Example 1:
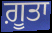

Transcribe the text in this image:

ਗ਼ੂਤਾ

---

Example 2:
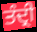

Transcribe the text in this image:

ਤੰਦ੍ਰੀ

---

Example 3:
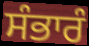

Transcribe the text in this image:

ਸੰਭਾਰੰ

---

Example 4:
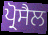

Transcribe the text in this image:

ਪ੍ਰੋਸੈਲ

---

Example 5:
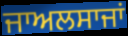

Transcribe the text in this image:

ਜਾਅਲਸਾਜਾਂ